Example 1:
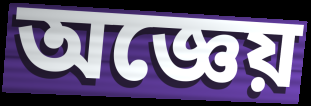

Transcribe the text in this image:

অজ্ঞেয়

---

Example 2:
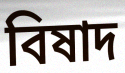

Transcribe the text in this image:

বিষাদ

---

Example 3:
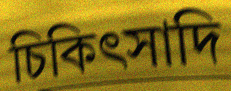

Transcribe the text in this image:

চিকিৎসাদি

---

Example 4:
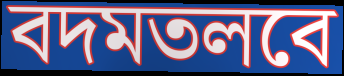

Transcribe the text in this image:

বদমতলবে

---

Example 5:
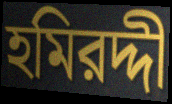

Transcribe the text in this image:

হমিরদ্দী